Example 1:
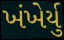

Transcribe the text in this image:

ખંખેર્યુ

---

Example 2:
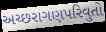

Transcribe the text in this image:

અચ્છરાગણપરિવુતો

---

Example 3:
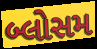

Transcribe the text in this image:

બ્લોસમ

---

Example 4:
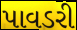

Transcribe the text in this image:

પાવડરી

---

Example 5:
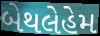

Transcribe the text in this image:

બેથલેહેમ